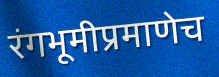
रंगभूमीप्रमाणेच